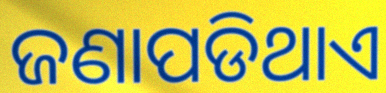
ଜଣାପଡିଥାଏ